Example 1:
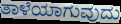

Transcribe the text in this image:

ತಾಳೆಯಾಗುವುದು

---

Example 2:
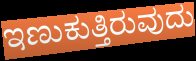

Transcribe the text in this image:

ಇಣುಕುತ್ತಿರುವುದು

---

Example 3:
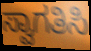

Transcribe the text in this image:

ಸ್ವಾಗತಿಸಿ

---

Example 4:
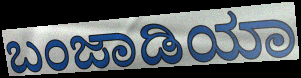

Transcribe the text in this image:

ಬಂಜಾಡಿಯಾ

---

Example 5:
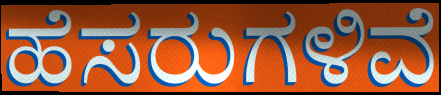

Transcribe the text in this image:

ಹೆಸರುಗಳಿವೆ